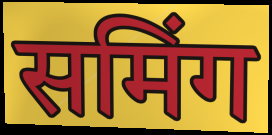
समिंग